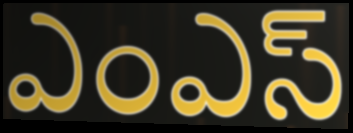
ఎంఎస్